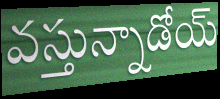
వస్తున్నాడోయ్